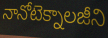
నానోటెక్నాలజీని